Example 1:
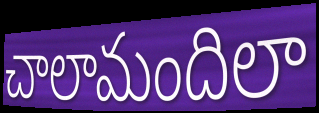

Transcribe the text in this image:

చాలామందిలా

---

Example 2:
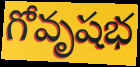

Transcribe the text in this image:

గోవృషభ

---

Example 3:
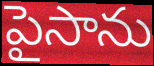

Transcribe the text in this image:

పైసాను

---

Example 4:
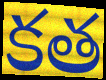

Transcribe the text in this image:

కత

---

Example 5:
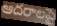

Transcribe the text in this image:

ఆదరాలపై